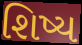
શિષ્ય